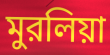
মুরলিয়া